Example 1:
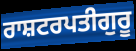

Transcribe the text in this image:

ਰਾਸ਼ਟਰਪਤੀਗੁਰੂ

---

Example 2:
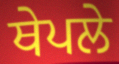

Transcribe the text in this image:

ਥੇਪਲੇ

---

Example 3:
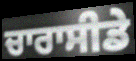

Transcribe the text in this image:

ਚਾਰਾਸੀਡੇ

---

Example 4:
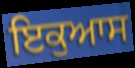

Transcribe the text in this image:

ਇਕੁਆਸ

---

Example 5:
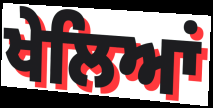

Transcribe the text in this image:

ਖੇਲਿਆਂ